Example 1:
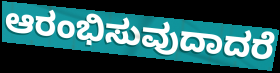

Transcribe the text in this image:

ಆರಂಭಿಸುವುದಾದರೆ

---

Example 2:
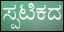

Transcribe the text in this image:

ಸ್ಪಟಿಕದ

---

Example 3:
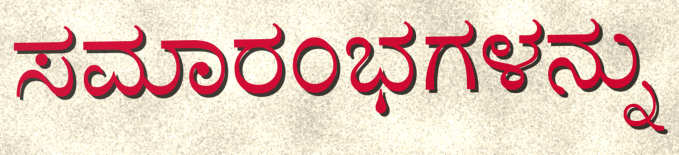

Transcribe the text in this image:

ಸಮಾರಂಭಗಳನ್ನು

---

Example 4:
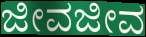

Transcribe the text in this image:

ಜೀವಜೀವ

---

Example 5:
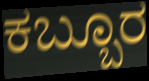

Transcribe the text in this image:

ಕಬ್ಬೂರ